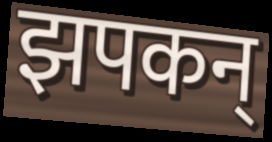
झपकन्